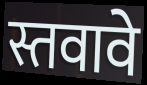
स्तवावे